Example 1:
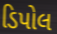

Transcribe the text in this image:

ડિપોલ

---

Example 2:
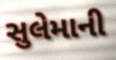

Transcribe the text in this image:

સુલેમાની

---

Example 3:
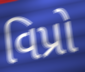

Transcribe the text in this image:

વિપ્રો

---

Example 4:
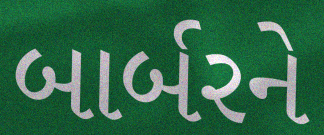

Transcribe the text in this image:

બાર્બરને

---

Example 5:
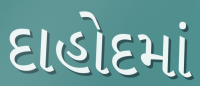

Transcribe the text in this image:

દાહોદમાં